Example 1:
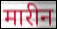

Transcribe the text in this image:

मारीन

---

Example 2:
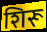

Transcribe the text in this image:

शिरू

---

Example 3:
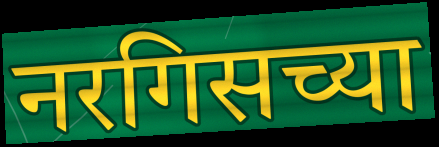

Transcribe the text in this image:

नरगिसच्या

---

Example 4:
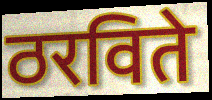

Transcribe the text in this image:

ठरविते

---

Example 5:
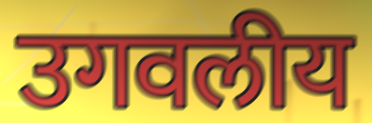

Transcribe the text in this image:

उगवलीय